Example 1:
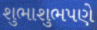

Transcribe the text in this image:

શુભાશુભપણે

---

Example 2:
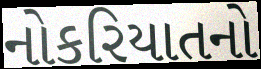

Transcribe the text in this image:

નોકરિયાતનો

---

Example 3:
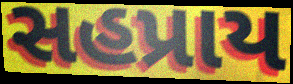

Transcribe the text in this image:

સહપ્રાય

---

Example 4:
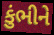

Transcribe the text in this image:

કુંભીને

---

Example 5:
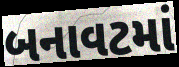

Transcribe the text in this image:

બનાવટમાં